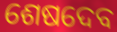
ଶେଷଦେବ